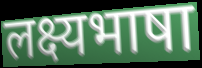
लक्ष्यभाषा